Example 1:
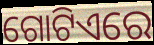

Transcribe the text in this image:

ଗୋଟିଏରେ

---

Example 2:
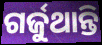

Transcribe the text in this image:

ଗର୍ଜୁଥାନ୍ତି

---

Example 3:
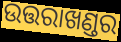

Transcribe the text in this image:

ଉତ୍ତରାଖଣ୍ଡର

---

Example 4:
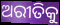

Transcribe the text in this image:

ଅରୀତିକୁ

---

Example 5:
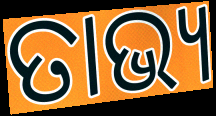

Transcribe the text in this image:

ତାଭ୍ୟ